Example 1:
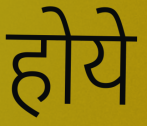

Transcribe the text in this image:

होये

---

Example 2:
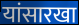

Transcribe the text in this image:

यांसारखा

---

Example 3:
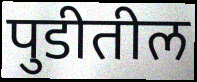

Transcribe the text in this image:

पुडीतील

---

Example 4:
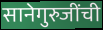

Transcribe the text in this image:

सानेगुरुजींची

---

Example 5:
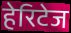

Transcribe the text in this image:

हेरिटेज